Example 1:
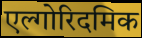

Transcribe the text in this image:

एल्गोरिदमिक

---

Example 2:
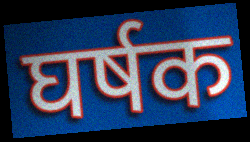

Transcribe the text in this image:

घर्षक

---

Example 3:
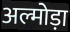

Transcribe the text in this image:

अल्मोड़ा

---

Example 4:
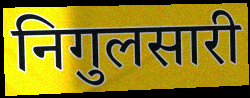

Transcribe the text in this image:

निगुलसारी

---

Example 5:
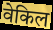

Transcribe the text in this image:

वेकिल